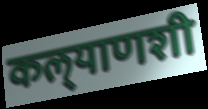
कल्याणशी